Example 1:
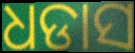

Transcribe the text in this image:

ଧଡାସ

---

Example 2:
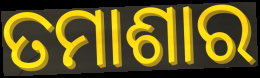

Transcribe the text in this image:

ତମାଶାର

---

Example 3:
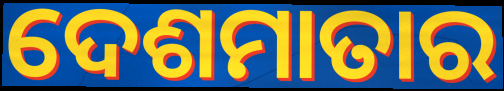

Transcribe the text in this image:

ଦେଶମାତାର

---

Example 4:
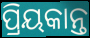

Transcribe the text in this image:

ପ୍ରିୟକାନ୍ତ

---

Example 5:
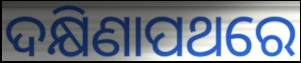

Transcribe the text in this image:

ଦକ୍ଷିଣାପଥରେ